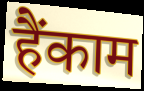
हैंकाम